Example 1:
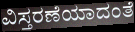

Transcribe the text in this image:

ವಿಸ್ತರಣೆಯಾದಂತೆ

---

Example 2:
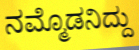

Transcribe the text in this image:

ನಮ್ಮೊಡನಿದ್ದು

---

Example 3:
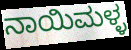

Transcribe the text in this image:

ನಾಯಿಮಳ್ಳ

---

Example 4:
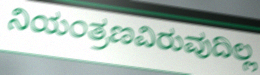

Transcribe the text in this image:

ನಿಯಂತ್ರಣವಿರುವುದಿಲ್ಲ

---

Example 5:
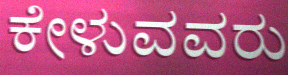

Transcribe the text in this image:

ಕೇಳುವವರು